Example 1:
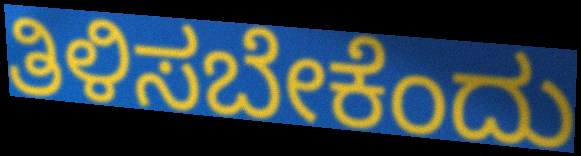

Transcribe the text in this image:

ತಿಳಿಸಬೇಕೆಂದು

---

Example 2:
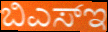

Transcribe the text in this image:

ಬಿಎಸ್ಇ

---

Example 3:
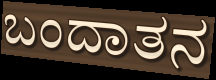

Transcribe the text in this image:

ಬಂದಾತನ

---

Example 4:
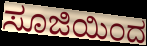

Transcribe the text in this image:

ಸೂಜಿಯಿಂದ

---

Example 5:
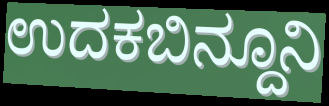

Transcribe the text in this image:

ಉದಕಬಿನ್ದೂನಿ